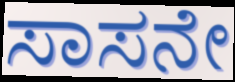
ಸಾಸನೇ